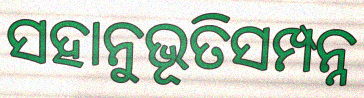
ସହାନୁଭୂତିସମ୍ପନ୍ନ